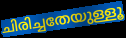
ചിരിച്ചതേയുള്ളൂ